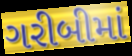
ગરીબીમાં